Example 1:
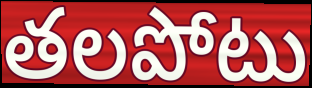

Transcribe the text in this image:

తలపోటు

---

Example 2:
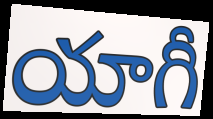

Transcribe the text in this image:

యాగీ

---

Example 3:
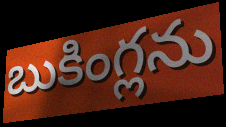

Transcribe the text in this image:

బుకింగ్లను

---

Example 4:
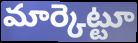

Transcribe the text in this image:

మార్కెట్టూ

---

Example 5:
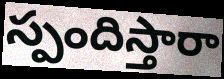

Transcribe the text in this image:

స్పందిస్తారా